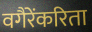
वगैरेंकरिता